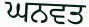
ਘਨਵਤ